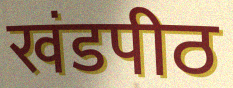
खंडपीठ